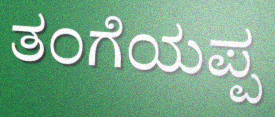
ತಂಗೆಯಪ್ಪ